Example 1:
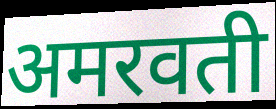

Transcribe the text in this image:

अमरवती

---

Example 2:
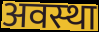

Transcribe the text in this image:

अवस्‍था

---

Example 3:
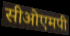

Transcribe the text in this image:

सीओएमपी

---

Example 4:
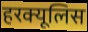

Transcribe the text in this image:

हरक्यूलिस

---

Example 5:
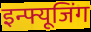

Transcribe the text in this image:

इन्फ्यूजिंग